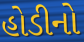
હોડીનો